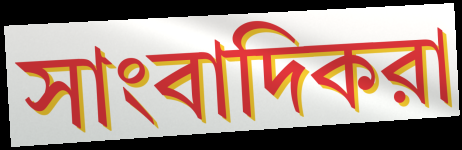
সাংবাদিকরা